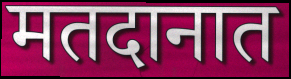
मतदानात